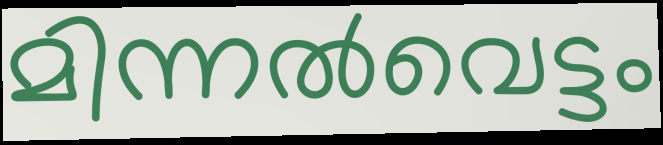
മിന്നൽവെട്ടം